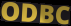
ODBC